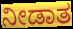
ನೀಡಾತ